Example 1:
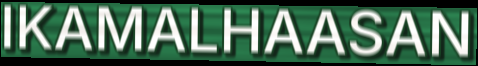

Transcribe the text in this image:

IKAMALHAASAN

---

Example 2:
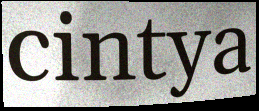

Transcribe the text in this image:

cintya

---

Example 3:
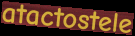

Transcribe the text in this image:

atactostele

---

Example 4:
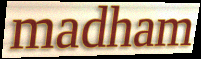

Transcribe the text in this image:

madham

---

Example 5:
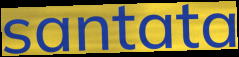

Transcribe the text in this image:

santata